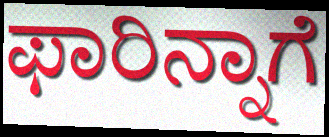
ಫಾರಿನ್ನಾಗೆ